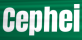
Cephei